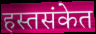
हस्तसंकेत